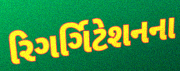
રિગર્ગિટેશનના